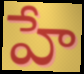
హే